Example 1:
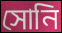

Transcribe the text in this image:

সোনি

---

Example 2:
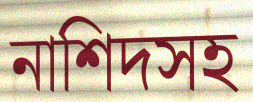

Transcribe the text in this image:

নাশিদসহ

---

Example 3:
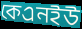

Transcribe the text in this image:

কেএনইউ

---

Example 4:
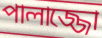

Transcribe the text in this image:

পালাজ্জো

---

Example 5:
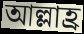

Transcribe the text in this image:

আল্লাহ্র